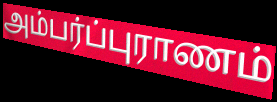
அம்பர்ப்புராணம்